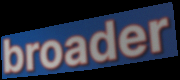
broader